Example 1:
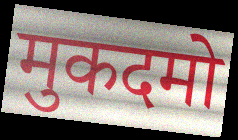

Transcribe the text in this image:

मुकदमो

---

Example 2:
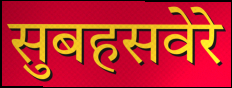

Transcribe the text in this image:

सुबहसवेरे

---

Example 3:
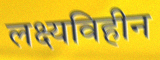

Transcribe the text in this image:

लक्ष्यविहीन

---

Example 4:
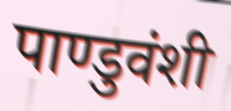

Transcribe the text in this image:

पाण्डुवंशी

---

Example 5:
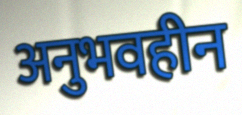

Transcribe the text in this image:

अनुभवहीन